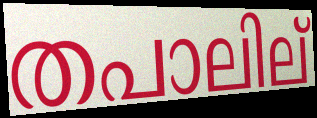
തപാലില്